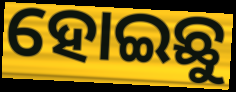
ହୋଇଛୁ